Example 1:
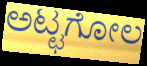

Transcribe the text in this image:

ಅಟ್ಟಗೋಲ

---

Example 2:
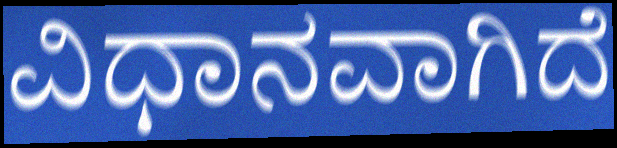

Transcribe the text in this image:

ವಿಧಾನವಾಗಿದೆ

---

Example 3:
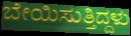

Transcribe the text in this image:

ಬೇಯಿಸುತ್ತಿದ್ದಳು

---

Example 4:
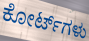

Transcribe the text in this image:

ಕೋರ್ಟ್‌ಗಳು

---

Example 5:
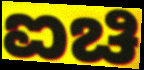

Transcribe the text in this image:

ಐಚಿ